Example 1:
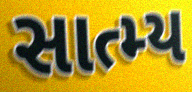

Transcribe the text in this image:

સાત્મ્ય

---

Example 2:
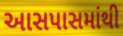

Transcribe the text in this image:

આસપાસમાંથી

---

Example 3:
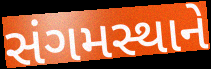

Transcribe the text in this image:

સંગમસ્થાને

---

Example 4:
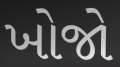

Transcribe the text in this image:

ખોજો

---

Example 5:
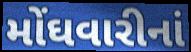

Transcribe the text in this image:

મોંઘવારીનાં